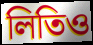
লিতিও